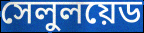
সেলুলয়েড